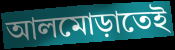
আলমোড়াতেই